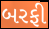
બરફી